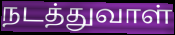
நடத்துவாள்